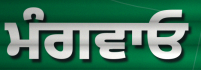
ਮੰਗਵਾਓ